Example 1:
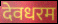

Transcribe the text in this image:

देवधरम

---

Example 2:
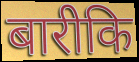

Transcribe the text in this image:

बारीकि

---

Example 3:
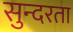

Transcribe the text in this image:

सुन्दरता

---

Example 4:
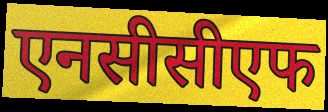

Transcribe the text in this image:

एनसीसीएफ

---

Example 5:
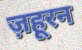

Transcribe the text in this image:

ज़हूरन